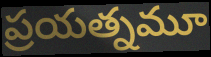
ప్రయత్నమూ